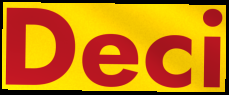
Deci